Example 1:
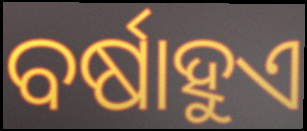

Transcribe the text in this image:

ବର୍ଷାହୁଏ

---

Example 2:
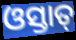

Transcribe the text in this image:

ଓସ୍ତାତ୍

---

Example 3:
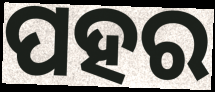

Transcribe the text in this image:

ପହର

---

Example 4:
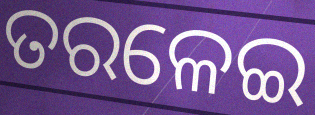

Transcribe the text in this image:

ତରଳେଇ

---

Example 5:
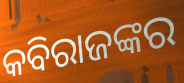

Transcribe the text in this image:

କବିରାଜଙ୍କର